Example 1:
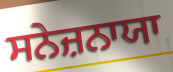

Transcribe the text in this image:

ਸਨੇਜ਼ਨਾਯਾ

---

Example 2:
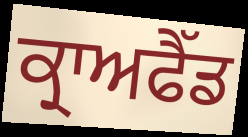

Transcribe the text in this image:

ਕ੍ਰਾਅਫੈੱਡ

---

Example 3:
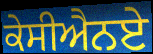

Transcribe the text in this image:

ਕੇਸੀਐਨਏ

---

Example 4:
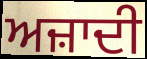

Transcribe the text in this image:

ਅਜ਼ਾਦੀ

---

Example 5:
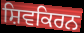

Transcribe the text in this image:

ਸ਼ਿਵਕਿਰਨ